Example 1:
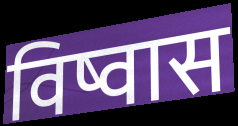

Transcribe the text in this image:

विष्वास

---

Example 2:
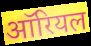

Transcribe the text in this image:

ऑरियल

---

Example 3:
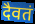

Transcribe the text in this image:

दैवतं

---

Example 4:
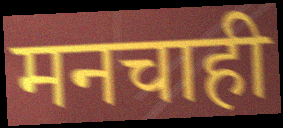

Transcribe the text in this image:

मनचाही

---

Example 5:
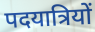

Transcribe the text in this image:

पदयात्रियों